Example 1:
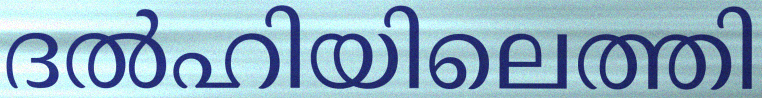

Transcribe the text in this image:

ദൽഹിയിലെത്തി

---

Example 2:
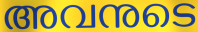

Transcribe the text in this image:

അവനുടെ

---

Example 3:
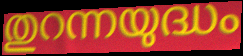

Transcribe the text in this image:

തുറന്നയുദ്ധം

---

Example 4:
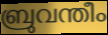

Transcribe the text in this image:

ബ്രുവന്തീം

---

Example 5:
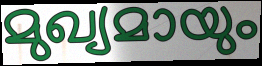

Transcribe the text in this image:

മുഖ്യമായും